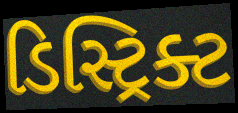
ડિસ્ટ્રિક્ટ